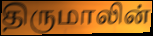
திருமாலின்